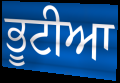
ਭੂਟੀਆ